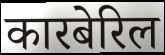
कारबेरिल